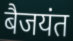
बैजयंत